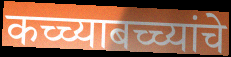
कच्च्याबच्च्यांचे